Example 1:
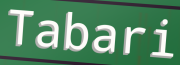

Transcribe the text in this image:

Tabari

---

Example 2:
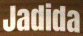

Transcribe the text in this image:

Jadida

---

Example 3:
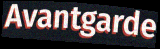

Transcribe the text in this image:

Avantgarde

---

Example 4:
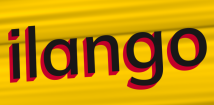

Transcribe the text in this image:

ilango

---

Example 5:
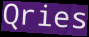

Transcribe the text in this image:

Qries